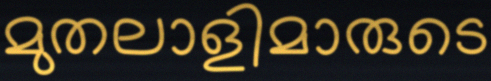
മുതലാളിമാരുടെ